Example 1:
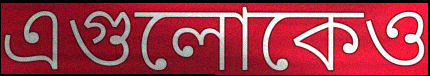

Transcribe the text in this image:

এগুলোকেও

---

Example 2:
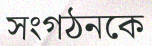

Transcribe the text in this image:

সংগঠনকে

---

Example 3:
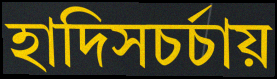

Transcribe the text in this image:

হাদিসচর্চায়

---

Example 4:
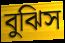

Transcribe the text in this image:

বুঝিস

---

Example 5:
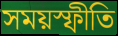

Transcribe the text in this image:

সময়স্ফীতি